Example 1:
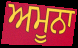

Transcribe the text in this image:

ਅਮੂਨਾ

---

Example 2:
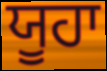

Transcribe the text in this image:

ਯੂਹਾ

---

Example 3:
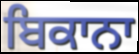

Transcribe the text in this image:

ਬਿਕਾਨਾ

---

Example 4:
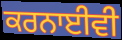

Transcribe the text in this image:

ਕਰਨਾਈਵੀ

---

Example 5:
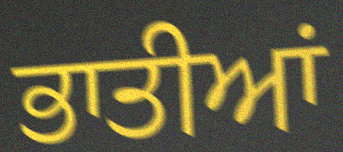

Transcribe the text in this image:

ਭਾਤੀਆਂ